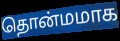
தொன்மமாக